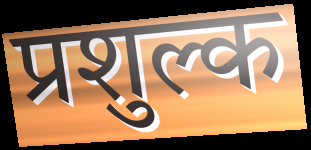
प्रशुल्क